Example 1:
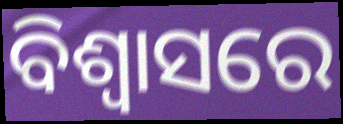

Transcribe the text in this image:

ବିଶ୍ୱାସରେ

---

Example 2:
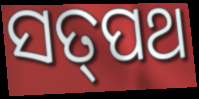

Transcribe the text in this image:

ସତ୍‌ପଥ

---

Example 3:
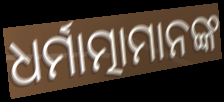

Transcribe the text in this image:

ଧର୍ମାତ୍ମାମାନଙ୍କ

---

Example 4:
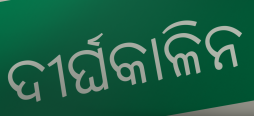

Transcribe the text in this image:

ଦୀର୍ଘକାଳିନ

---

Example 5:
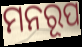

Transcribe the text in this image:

ମନରୂପ